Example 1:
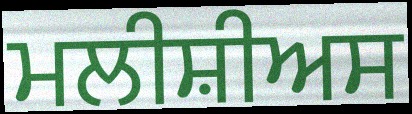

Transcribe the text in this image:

ਮਲੀਸ਼ੀਅਸ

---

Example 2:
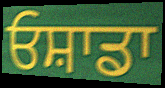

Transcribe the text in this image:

ਓਸ਼ਾਡਾ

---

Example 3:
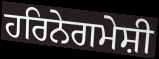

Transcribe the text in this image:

ਹਰਿਨੇਗਮੇਸ਼ੀ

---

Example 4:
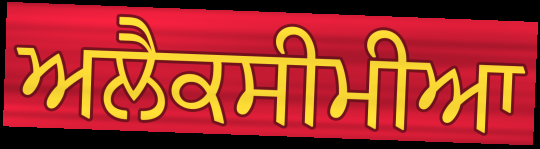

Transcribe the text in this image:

ਅਲੈਕਸੀਮੀਆ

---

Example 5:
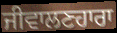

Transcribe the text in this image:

ਜੀਵਾਲਣਹਾਰਾ